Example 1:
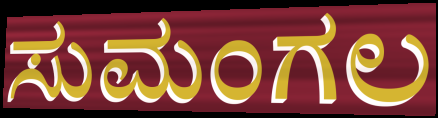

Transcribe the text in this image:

ಸುಮಂಗಲ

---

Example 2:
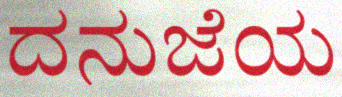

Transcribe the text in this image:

ದನುಜೆಯ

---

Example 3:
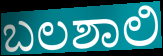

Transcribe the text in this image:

ಬಲಶಾಲಿ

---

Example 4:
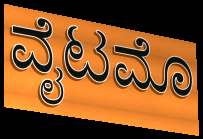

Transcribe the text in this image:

ವೈಟಮೊ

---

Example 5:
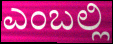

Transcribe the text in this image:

ಎಂಬಲ್ಲಿ